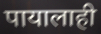
पायालाही